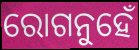
ରୋଗନୁହେଁ